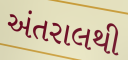
અંતરાલથી